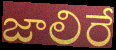
జాలిరే